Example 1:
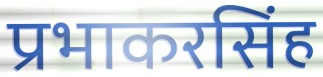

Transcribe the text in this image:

प्रभाकरसिंह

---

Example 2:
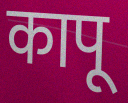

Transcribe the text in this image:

कापू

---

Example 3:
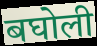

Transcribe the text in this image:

बघोली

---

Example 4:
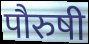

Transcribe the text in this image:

पौरुषी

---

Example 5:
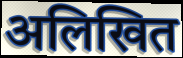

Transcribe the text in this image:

अलिखित